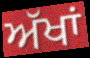
ਅੱਖਾਂ